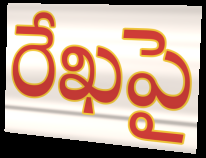
రేఖపై